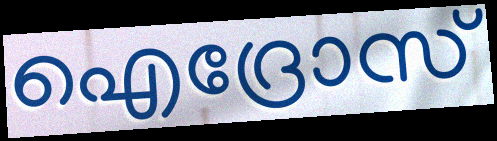
ഐദ്രോസ്